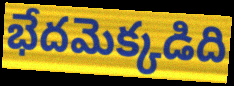
భేదమెక్కడిది